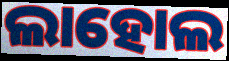
ଲାହୋଲ